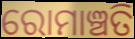
ରୋମାଞ୍ଚତି